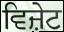
ਵਿਜ਼ੇਟ